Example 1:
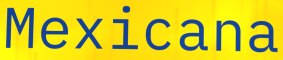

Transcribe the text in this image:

Mexicana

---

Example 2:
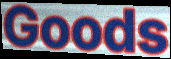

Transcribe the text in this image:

Goods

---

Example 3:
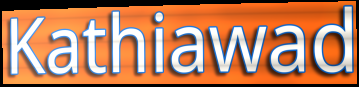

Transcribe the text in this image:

Kathiawad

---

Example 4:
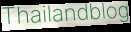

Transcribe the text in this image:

Thailandblog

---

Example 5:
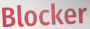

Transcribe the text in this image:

Blocker